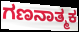
ಗಣನಾತ್ಮಕ